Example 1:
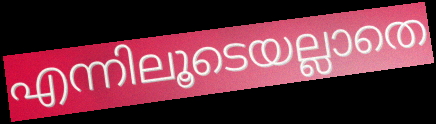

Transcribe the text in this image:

എന്നിലൂടെയല്ലാതെ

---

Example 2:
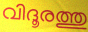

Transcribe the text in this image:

വിദൂരത്തു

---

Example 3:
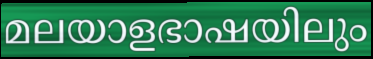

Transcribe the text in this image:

മലയാളഭാഷയിലും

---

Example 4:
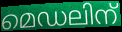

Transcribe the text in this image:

മെഡലിന്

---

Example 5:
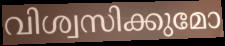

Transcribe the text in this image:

വിശ്വസിക്കുമോ